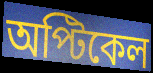
অপ্টিকেল